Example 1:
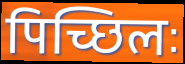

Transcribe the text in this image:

पिच्छिलः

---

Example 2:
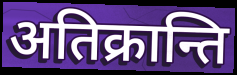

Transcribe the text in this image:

अतिक्रान्ति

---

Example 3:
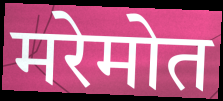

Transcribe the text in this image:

मरेमोत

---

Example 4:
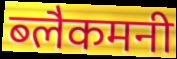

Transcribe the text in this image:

ब्‍लैकमनी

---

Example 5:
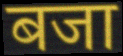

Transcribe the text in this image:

बजा